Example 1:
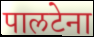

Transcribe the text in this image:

पालटेना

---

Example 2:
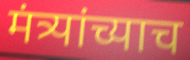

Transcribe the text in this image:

मंत्र्यांच्याच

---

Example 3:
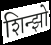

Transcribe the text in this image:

शिन्झो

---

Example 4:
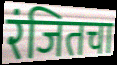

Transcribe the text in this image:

रंजितचा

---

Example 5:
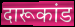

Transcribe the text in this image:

दारूकांड